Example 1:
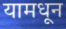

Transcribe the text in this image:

यामधून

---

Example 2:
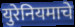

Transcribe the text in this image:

युरेनियमाचे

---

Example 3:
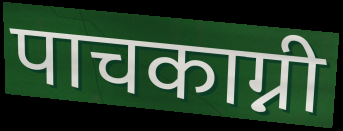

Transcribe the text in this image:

पाचकाग्नी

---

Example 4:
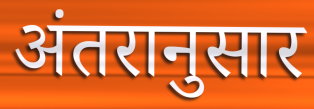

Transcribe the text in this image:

अंतरानुसार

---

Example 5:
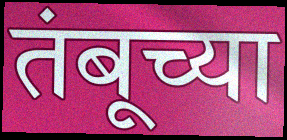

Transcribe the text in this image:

तंबूच्या